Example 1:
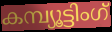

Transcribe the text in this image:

കമ്പ്യൂട്ടിംഗ്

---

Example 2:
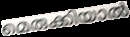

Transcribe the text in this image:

മെരുക്കിയാൽ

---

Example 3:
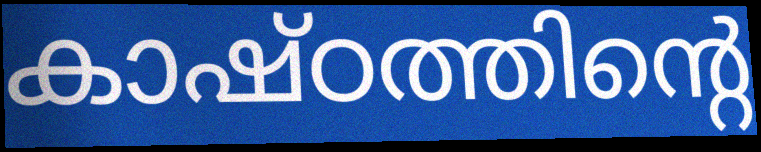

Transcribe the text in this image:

കാഷ്ഠത്തിന്റെ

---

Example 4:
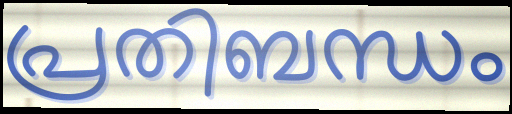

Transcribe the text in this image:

പ്രതിബന്ധം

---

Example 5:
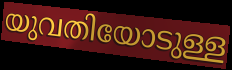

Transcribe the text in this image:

യുവതിയോടുള്ള